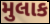
મુલાક